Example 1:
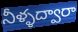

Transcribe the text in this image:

నీళ్ళద్వారా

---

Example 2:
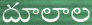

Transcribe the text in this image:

దూలాల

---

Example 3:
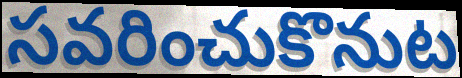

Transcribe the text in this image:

సవరించుకొనుట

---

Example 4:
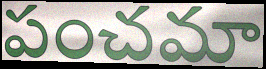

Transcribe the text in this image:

పంచమా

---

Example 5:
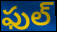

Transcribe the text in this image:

ఫుల్